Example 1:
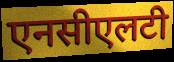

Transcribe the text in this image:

एनसीएलटी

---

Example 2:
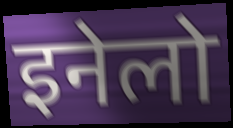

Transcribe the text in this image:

इनेलो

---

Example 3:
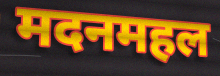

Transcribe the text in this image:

मदनमहल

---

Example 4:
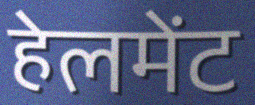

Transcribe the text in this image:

हेलमेंट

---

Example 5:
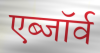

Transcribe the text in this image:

एब्जॉर्व